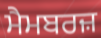
ਮੈਮਬਰਜ਼